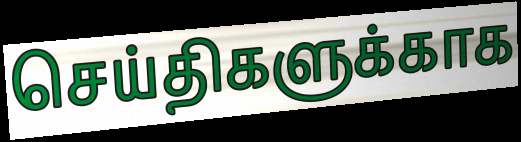
செய்திகளுக்காக